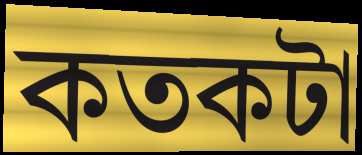
কতকটা